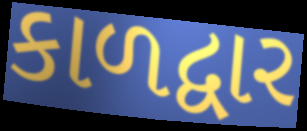
કાળદ્વાર